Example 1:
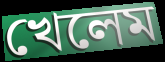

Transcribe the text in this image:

খেলেম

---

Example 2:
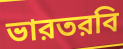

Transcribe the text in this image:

ভারতরবি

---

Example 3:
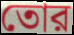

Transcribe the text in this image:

তোর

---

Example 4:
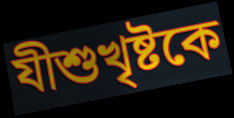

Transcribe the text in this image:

যীশুখৃষ্টকে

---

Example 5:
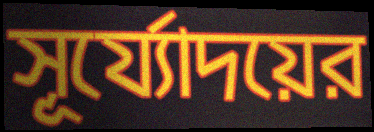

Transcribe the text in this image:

সূর্য্যোদয়ের